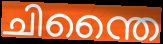
ചിന്തൈ